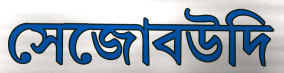
সেজোবউদি